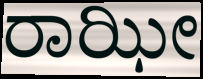
ರಾಝೀ